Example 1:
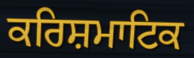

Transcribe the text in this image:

ਕਰਿਸ਼ਮਾਟਿਕ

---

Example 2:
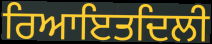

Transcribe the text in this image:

ਰਿਆਇਤਦਿਲੀ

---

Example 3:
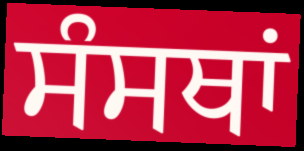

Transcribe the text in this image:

ਸੰਸਥਾਂ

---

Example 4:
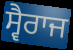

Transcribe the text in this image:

ਸ੍ਵੈਰਾਜ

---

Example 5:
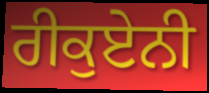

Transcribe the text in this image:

ਰੀਕੁਏਨੀ